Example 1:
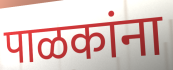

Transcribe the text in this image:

पाळकांना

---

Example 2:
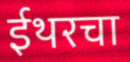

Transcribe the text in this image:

ईथरचा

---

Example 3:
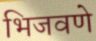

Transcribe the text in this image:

भिजवणे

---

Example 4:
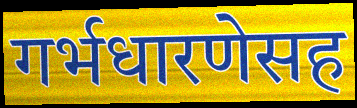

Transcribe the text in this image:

गर्भधारणेसह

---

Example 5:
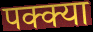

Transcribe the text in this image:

पक्क्या